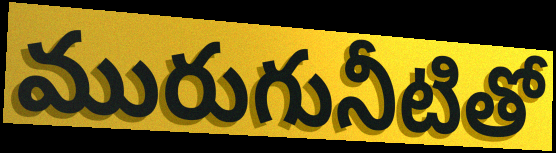
మురుగునీటితో